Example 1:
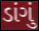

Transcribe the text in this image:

ડાંગું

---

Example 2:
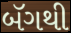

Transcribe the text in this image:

બૅગથી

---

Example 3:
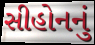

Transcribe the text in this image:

સીહોનનું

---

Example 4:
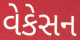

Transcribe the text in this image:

વેકેસન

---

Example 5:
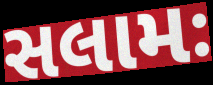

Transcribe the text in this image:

સલામઃ